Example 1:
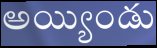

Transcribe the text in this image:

అయ్యిండు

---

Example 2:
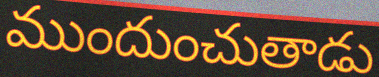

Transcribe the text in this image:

ముందుంచుతాడు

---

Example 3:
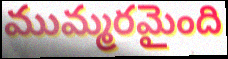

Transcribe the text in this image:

ముమ్మరమైంది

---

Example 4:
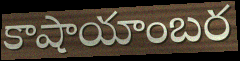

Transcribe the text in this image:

కాషాయాంబర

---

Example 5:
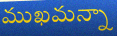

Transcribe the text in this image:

ముఖమన్నా